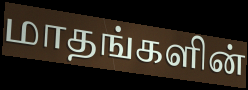
மாதங்களின்